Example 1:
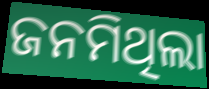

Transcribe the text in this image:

ଜନମିଥିଲା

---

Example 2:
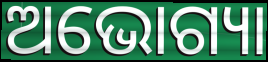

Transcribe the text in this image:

ଅଭୋଗ୍ୟା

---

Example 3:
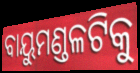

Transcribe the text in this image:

ବାୟୁମଣ୍ଡଳଟିକୁ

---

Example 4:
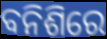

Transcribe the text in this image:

ବନିଶିରେ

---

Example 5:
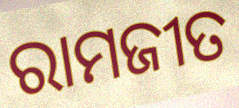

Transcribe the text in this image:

ରାମଜୀତ